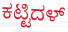
ಕಟ್ಟಿದಳ್